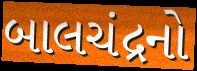
બાલચંદ્રનો